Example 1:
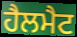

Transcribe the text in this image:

ਹੈਲਮੈਟ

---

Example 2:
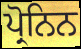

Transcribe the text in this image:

ਪ੍ਰੋਨਿਨ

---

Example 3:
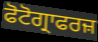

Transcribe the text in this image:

ਫੋਟੋਗ੍ਰਾਫਰਜ਼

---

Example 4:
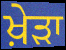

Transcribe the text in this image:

ਖ਼ੇੜਾ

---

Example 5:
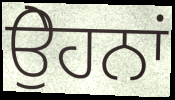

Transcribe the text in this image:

ਉੇਹਨਾਂ